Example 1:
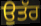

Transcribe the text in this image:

ਉਤੱਰ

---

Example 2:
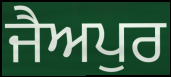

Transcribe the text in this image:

ਜੈਅਪੁਰ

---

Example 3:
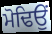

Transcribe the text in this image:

ਮੋਢਿਉਂ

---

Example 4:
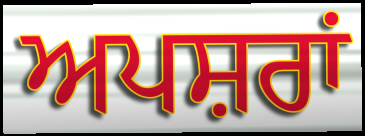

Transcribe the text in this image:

ਅਪਸ਼ਰਾਂ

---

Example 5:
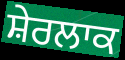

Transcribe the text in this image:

ਸ਼ੇਰਲਾਕ